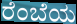
ರೆಂಬೆಯ